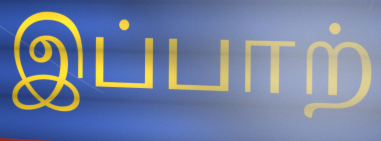
இப்பாற்